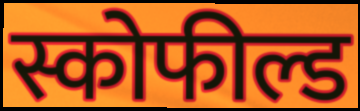
स्कोफील्ड